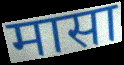
मासा